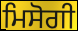
ਮਿਸੋਗੀ